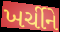
ખર્ચીને